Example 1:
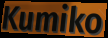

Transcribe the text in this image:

Kumiko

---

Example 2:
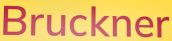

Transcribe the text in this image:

Bruckner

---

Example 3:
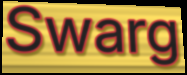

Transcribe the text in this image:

Swarg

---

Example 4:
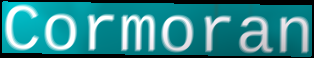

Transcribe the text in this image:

Cormoran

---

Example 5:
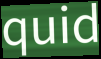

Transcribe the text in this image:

quid